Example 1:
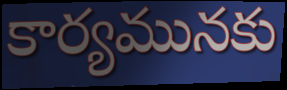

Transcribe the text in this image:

కార్యమునకు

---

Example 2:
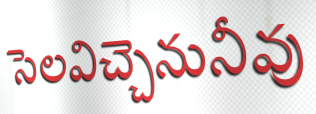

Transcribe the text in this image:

సెలవిచ్చెనునీవు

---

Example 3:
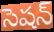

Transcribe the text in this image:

సెషన్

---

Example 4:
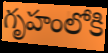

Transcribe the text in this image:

గృహంలోకి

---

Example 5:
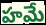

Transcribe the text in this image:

హమే